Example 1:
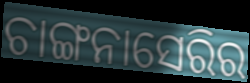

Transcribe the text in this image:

ଚାଙ୍ଗନାସେରିର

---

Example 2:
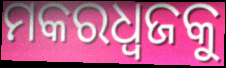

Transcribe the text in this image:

ମକରଧ୍ୱଜକୁ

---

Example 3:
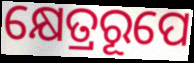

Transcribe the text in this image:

କ୍ଷେତ୍ରରୂପେ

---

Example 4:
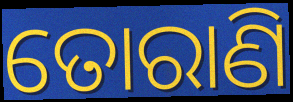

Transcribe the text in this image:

ତୋରାଣି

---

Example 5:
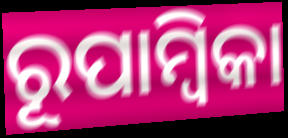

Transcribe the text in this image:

ରୂପାମ୍ବିକା